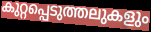
കുറ്റപ്പെടുത്തലുകളും